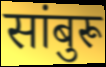
सांबुरू